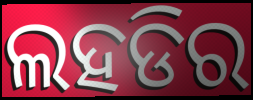
ଲହଡିର